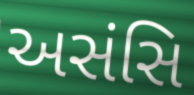
અસંસિ